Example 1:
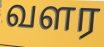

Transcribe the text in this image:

வளர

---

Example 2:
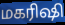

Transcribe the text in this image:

மகரிஷி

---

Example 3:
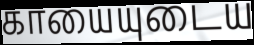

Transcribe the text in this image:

காயையுடைய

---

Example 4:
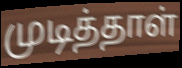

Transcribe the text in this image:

முடித்தாள்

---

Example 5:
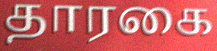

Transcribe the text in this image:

தாரகை